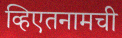
व्हिएतनामची